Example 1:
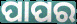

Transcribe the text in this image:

ପାପର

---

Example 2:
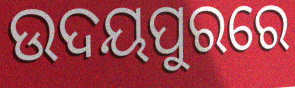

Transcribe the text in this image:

ଉଦୟପୁରରେ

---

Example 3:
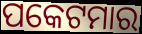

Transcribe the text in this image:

ପକେଟମାର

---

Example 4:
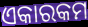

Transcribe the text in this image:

ଏକାରକମ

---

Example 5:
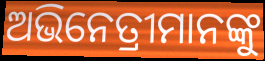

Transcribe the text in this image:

ଅଭିନେତ୍ରୀମାନଙ୍କୁ